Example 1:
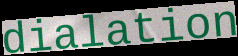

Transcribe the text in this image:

dialation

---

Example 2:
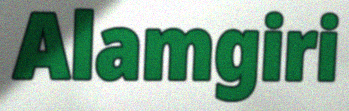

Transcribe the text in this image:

Alamgiri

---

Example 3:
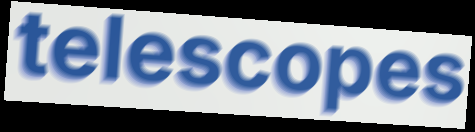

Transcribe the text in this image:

telescopes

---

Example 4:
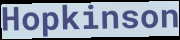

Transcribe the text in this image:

Hopkinson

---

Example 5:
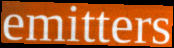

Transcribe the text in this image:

emitters